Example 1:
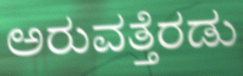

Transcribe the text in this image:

ಅರುವತ್ತೆರಡು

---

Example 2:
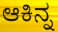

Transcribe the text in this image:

ಆಕಿನ್ನ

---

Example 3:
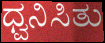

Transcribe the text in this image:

ಧ್ವನಿಸಿತು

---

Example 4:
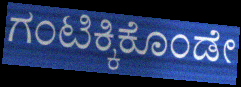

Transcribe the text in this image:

ಗಂಟಿಕ್ಕಿಕೊಂಡೇ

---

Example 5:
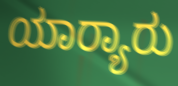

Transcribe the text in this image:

ಯಾರ್‍ಯಾರು